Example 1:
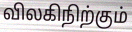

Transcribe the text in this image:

விலகிநிற்கும்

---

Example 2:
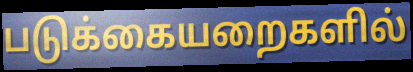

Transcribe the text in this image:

படுக்கையறைகளில்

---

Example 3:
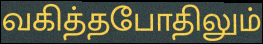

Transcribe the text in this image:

வகித்தபோதிலும்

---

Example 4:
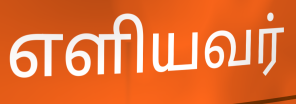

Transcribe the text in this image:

எளியவர்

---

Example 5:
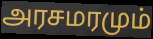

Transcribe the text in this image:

அரசமரமும்